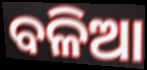
ବଳିଆ